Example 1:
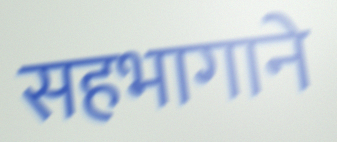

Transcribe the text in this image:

सहभागाने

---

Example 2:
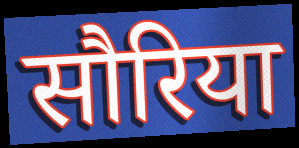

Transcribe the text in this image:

सौरिया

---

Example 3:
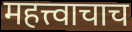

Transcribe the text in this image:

महत्त्वाचाच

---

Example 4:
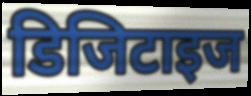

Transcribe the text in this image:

डिजिटाइज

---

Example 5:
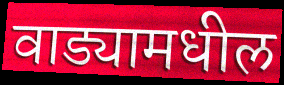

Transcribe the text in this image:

वाड्यामधील